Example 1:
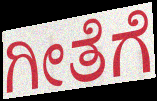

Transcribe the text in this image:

ಗೀತೆಗೆ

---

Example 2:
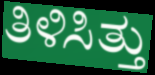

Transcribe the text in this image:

ತಿಳಿಸಿತ್ತು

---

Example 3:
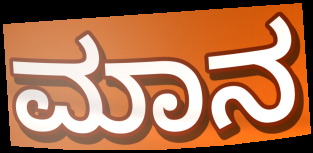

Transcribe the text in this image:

ಮಾನ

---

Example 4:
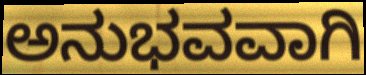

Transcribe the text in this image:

ಅನುಭವವಾಗಿ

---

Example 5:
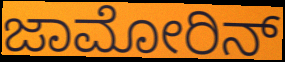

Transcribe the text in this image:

ಜಾಮೋರಿನ್